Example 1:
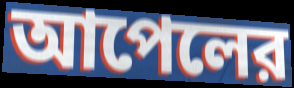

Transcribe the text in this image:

আপেলের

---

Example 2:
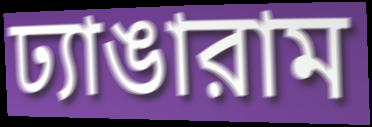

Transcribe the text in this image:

ঢ্যাঙারাম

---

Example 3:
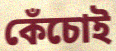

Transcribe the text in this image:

কেঁচোই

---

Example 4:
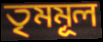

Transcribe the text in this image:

তৃমমূল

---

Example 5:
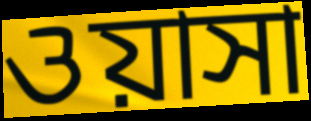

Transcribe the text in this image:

ওয়াসা